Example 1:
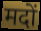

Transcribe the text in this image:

मदों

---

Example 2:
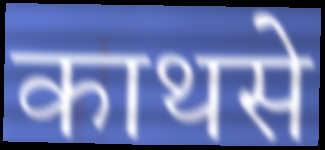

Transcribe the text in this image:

काथसे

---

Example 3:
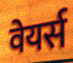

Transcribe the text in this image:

वेयर्स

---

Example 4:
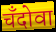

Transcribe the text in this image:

चँदोवा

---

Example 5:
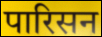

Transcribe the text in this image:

पारिसन